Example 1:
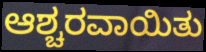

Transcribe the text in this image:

ಆಶ್ಚರವಾಯಿತು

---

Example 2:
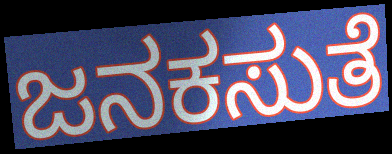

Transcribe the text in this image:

ಜನಕಸುತೆ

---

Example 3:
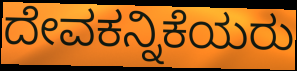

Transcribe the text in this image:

ದೇವಕನ್ನಿಕೆಯರು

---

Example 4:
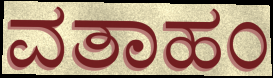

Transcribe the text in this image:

ವತಾಹಂ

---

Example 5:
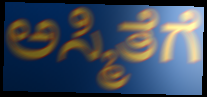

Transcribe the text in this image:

ಅಸ್ಮಿತೆಗೆ